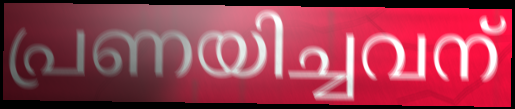
പ്രണയിച്ചവന്